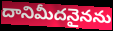
దానిమీదనైనను